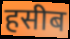
हसीब